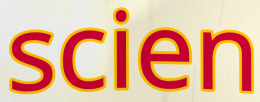
scien